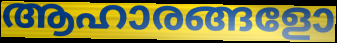
ആഹാരങ്ങളോ